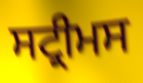
ਸਟ੍ਰੀਮਸ